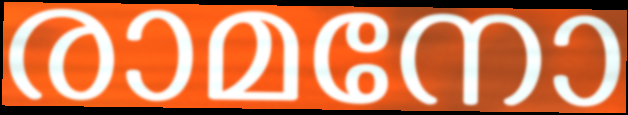
രാമനോ